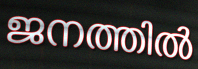
ജനത്തിൽ